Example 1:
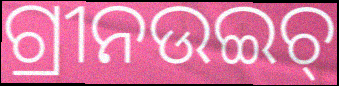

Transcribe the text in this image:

ଗ୍ରୀନଉଇଚ୍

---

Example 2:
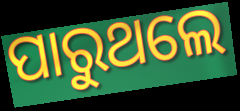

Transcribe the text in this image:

ପାରୁଥଲେ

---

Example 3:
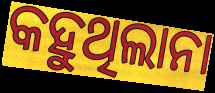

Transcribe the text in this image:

କହୁଥିଲାନା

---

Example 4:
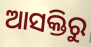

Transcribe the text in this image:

ଆସକ୍ତିରୁ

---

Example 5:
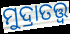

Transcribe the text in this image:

ମୁଦ୍ରାତତ୍ତ୍ବ